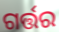
ଗର୍ତ୍ତର